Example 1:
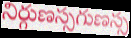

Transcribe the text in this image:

నిర్గుణస్సగుణస్స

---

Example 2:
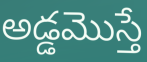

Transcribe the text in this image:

అడ్డమొస్తే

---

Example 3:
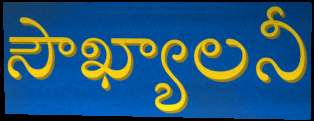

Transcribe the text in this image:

సౌఖ్యాలనీ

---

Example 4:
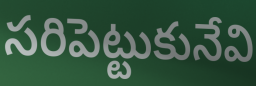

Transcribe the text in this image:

సరిపెట్టుకునేవి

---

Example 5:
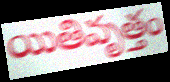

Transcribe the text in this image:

యితివృత్తం